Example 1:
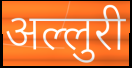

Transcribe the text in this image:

अल्लुरी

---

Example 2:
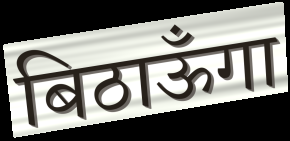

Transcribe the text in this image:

बिठाऊँगा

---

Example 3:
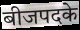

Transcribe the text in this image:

बीजपदके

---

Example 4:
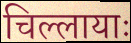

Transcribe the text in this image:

चिल्लायाः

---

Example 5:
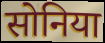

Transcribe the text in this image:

सोनिया